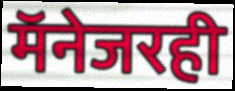
मॅनेजरही